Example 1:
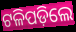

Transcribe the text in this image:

ଟଳିପଡ଼ିଲେ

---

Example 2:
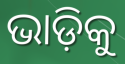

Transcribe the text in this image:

ଭାଡ଼ିକୁ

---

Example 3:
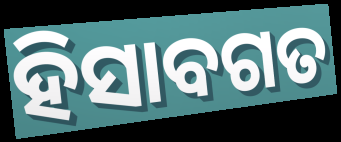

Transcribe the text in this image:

ହିସାବଗତ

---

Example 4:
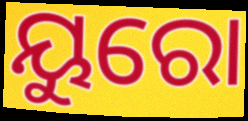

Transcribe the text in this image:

ୟୁରୋ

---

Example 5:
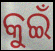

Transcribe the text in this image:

କୁଇଁ